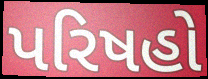
પરિષહો